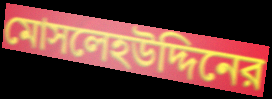
মোসলেহউদ্দিনের